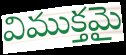
విముక్తమై